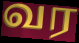
வர